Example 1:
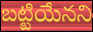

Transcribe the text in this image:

బట్టియేనని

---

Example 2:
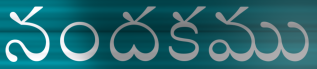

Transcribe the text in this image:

నందకము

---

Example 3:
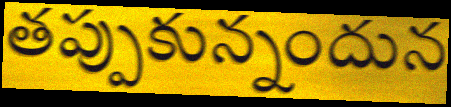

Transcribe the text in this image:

తప్పుకున్నందున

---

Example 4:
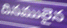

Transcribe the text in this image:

దినములైన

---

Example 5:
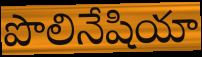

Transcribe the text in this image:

పొలినేషియా